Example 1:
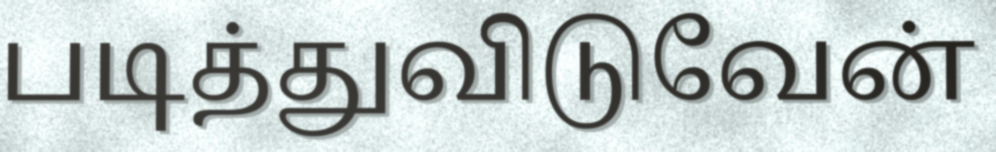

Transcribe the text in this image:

படித்துவிடுவேன்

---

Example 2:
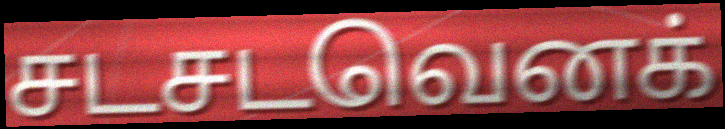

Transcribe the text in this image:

சடசடவெனக்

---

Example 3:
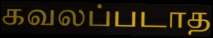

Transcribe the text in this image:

கவலப்படாத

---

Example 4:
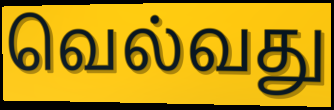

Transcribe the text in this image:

வெல்வது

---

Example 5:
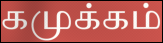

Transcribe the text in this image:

கமுக்கம்